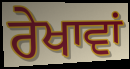
ਰੇਖਾਵਾਂ